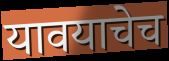
यावयाचेच